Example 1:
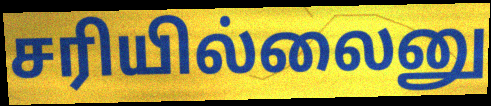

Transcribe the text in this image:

சரியில்லைனு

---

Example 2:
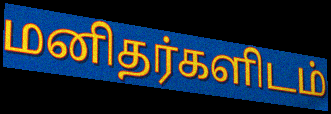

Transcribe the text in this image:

மனிதர்களிடம்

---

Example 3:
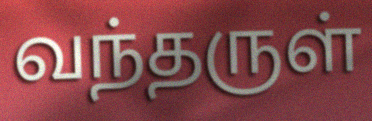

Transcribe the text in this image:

வந்தருள்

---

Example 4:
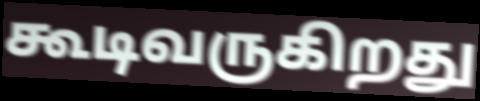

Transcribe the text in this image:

கூடிவருகிறது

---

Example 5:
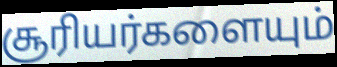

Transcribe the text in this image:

சூரியர்களையும்